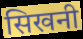
सिखनी